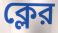
ক্লের